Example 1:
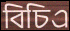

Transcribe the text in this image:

বিচিএ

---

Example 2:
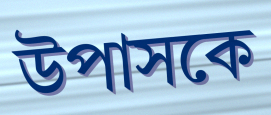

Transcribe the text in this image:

উপাসকে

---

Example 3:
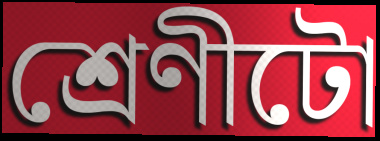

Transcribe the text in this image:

শ্ৰেণীটো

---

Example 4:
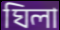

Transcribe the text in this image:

ঘিলা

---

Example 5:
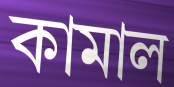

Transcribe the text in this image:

কামাল